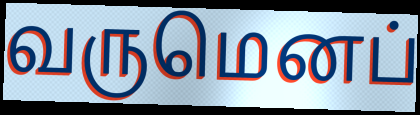
வருமெனப்